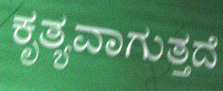
ಕೃತ್ಯವಾಗುತ್ತದೆ